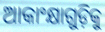
ଆକାଂକ୍ଷାଗୁଡ଼ିକୁ